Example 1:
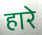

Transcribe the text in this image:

हारे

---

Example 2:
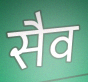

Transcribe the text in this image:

सैव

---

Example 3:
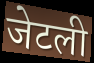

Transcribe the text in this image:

जेटली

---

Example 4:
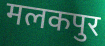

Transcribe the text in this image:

मलकपुर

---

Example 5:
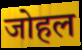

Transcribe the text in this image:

जोहल